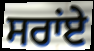
ਸਰਾਂਏ